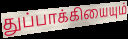
துப்பாக்கியையும்